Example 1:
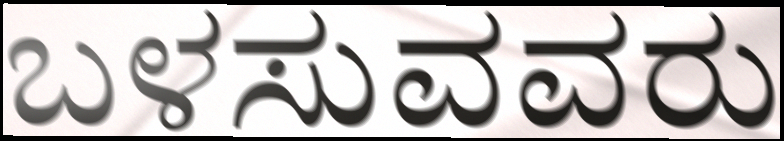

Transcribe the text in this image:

ಬಳಸುವವರು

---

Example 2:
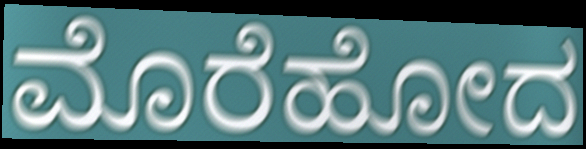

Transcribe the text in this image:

ಮೊರೆಹೋದ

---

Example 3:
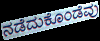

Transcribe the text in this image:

ನಡೆದುಕೊಂಡೆವು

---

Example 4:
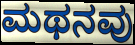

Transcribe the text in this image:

ಮಥನವು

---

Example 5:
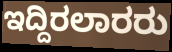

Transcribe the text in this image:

ಇದ್ದಿರಲಾರರು